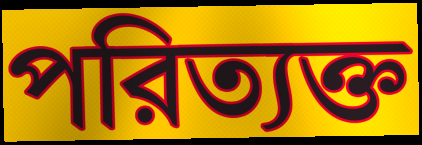
পরিত্যক্ত